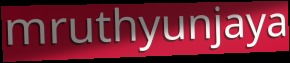
mruthyunjaya